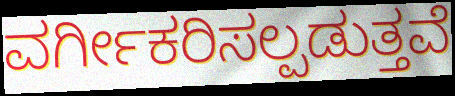
ವರ್ಗೀಕರಿಸಲ್ಪಡುತ್ತವೆ